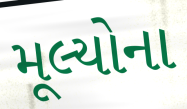
મૂલ્‍યોના